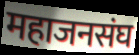
महाजनसंघ